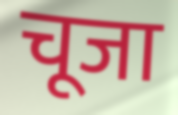
चूजा